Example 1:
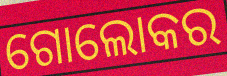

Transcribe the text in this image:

ଗୋଲୋକର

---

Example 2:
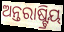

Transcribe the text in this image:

ଅନ୍ତରାଷ୍ଟ୍ରିୟ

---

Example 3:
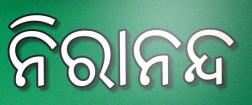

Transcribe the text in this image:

ନିରାନନ୍ଦ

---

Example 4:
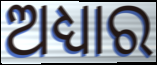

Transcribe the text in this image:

ଅଧ୍ୟାର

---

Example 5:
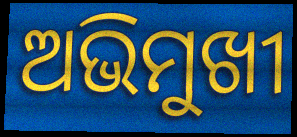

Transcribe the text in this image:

ଅଭିମୁଖୀ